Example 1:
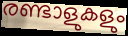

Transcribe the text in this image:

രണ്ടാളുകളും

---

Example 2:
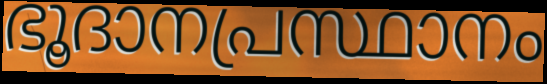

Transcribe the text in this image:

ഭൂദാനപ്രസ്ഥാനം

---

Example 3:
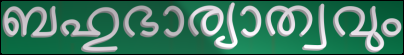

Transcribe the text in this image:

ബഹുഭാര്യാത്വവും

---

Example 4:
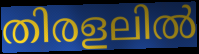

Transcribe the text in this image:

തിരളലിൽ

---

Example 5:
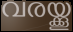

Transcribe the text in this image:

വരയ്ക്കൂ